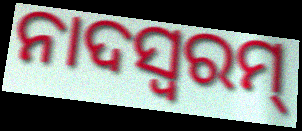
ନାଦସ୍ଵରମ୍